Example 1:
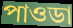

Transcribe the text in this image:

পাওডা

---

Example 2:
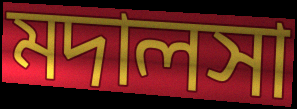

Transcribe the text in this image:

মদালসা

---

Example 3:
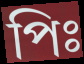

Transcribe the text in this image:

পিঃ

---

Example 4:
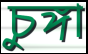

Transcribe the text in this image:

চুঙ্গা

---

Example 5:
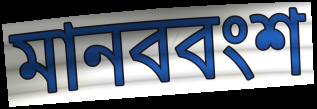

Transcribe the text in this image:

মানববংশ